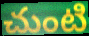
చుంటి